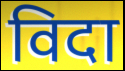
विदा